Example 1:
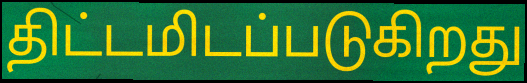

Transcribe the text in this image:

திட்டமிடப்படுகிறது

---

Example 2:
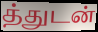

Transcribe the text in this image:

த்துடன்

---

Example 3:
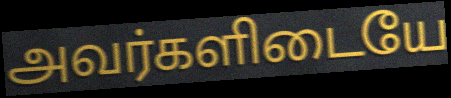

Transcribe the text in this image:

அவர்களிடையே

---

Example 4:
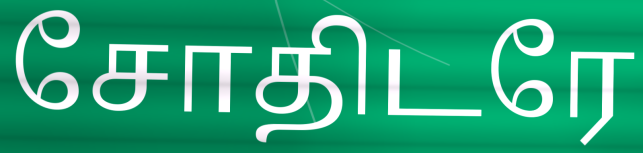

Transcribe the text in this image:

சோதிடரே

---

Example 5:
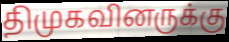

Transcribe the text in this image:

திமுகவினருக்கு